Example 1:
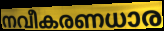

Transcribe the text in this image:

നവീകരണധാര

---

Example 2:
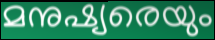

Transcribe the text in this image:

മനുഷ്യരെയും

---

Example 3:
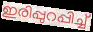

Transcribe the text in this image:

ഇരിപ്പുറപ്പിച്ച്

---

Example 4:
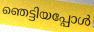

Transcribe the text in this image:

ഞെട്ടിയപ്പോൾ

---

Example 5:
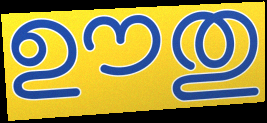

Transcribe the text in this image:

ഊതു